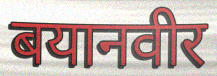
बयानवीर